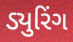
ડ્યુરિંગ